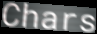
Chars